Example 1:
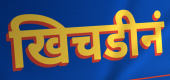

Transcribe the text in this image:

खिचडीनं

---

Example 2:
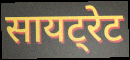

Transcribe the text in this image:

सायट्रेट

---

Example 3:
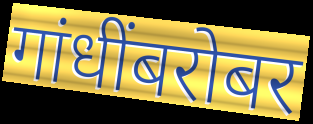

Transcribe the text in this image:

गांधींबरोबर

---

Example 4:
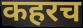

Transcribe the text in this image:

कहरच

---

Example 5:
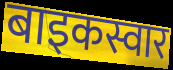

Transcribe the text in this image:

बाइकस्वार